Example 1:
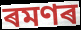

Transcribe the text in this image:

ৰমণৰ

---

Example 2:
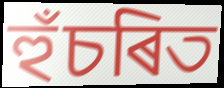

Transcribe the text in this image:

হুঁচৰিত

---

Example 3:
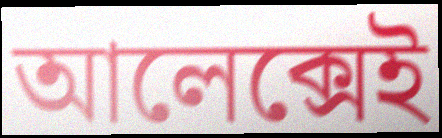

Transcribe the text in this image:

আলেক্সেই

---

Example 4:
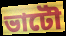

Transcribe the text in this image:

ভাটৌ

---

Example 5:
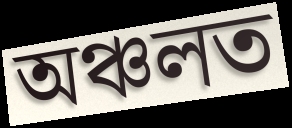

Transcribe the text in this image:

অঞ্চলত